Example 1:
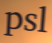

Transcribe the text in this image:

psl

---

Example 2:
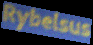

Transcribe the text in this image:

Rybelsus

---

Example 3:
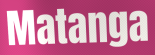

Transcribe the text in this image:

Matanga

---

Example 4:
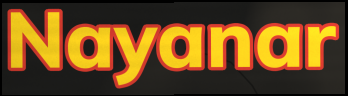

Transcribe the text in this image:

Nayanar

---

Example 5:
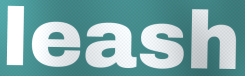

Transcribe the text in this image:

leash